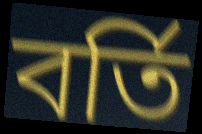
বৰ্তি